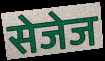
सेजेज